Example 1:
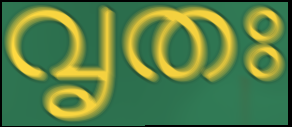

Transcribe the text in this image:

വൃതഃ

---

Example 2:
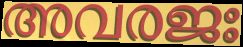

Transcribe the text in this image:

അവരജഃ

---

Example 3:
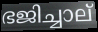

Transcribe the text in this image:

ഭജിച്ചാല്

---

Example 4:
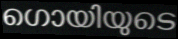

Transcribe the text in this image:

ഗൊയിയുടെ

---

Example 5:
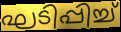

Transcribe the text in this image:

ഘടിപ്പിച്ച്